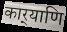
कार्याणि